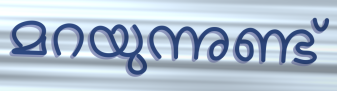
മറയുന്നുണ്ട്